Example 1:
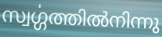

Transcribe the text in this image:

സ്വൎഗ്ഗത്തിൽനിന്നു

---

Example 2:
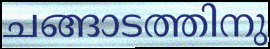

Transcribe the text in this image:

ചങ്ങാടത്തിനു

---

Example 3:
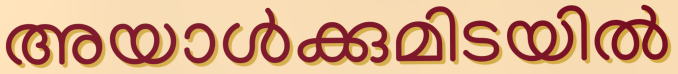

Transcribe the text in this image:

അയാൾക്കുമിടയിൽ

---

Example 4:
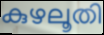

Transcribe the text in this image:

കുഴലൂതി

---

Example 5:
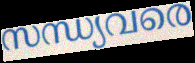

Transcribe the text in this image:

സന്ധ്യവരെ